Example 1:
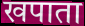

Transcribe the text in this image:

खपाता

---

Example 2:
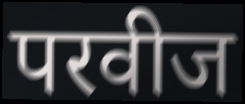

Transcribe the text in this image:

परवीज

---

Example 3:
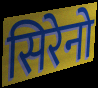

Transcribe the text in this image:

सिरेनो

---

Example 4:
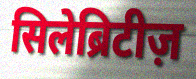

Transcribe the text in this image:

सिलेब्रिटीज़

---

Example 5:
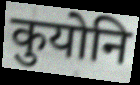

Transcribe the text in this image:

कुयोनि